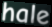
hale